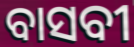
ବାସବୀ